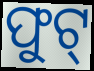
ଫୁଟ୍